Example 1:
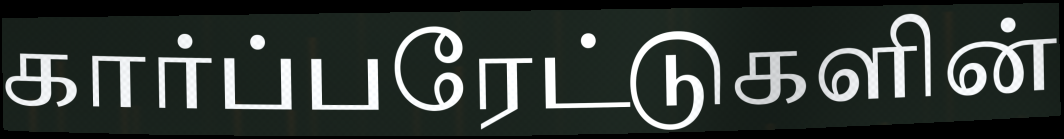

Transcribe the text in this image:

கார்ப்பரேட்டுகளின்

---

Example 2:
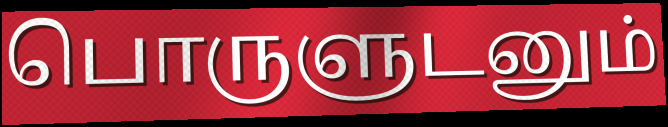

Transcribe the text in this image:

பொருளுடனும்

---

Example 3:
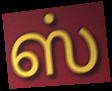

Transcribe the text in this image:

ஸ்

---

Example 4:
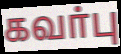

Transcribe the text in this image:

கவர்பு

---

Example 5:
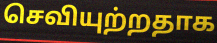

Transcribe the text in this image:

செவியுற்றதாக